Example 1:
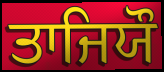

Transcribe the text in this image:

ਤਾਜਿਯੌ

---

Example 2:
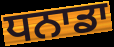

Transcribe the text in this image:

ਧਨਾਡਾ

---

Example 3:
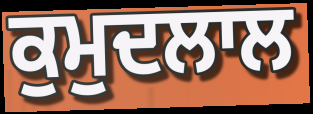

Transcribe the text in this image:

ਕੁਮੁਦਲਾਲ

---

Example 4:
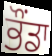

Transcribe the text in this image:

ਭੌਂਡਾ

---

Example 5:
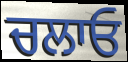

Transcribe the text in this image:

ਚਲਾਓ